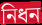
নিধন